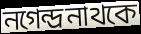
নগেন্দ্রনাথকে